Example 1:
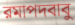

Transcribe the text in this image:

রমাপদবাবু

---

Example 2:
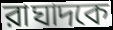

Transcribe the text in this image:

রাঘাদকে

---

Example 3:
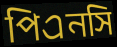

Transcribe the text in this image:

পিএনসি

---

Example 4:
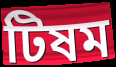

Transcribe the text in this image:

টিষম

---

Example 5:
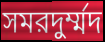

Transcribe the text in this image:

সমরদুর্ম্মদ